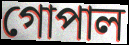
গোপাল